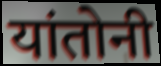
यांतोनी